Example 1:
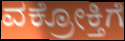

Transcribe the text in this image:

ವಕ್ರೋಕ್ತಿಗೆ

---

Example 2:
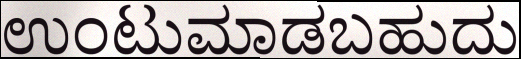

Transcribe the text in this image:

ಉಂಟುಮಾಡಬಹುದು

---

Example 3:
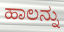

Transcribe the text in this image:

ಹಾಲನ್ನು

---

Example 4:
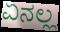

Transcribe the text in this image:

ಏನಲ್ಲ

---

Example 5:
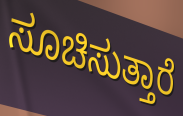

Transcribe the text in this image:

ಸೂಚಿಸುತ್ತಾರೆ